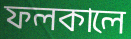
ফলকালে